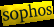
sophos